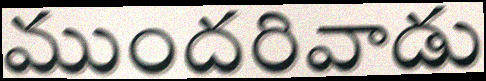
ముందరివాడు